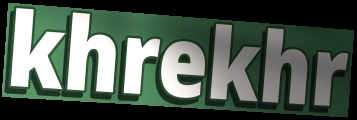
khrekhr